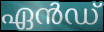
ഏൻഡ്